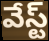
వేస్ట్